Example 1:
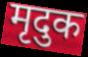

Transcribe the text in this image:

मृदुक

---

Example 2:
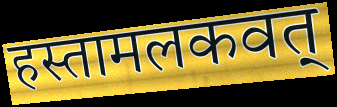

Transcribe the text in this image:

हस्तामलकवत्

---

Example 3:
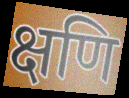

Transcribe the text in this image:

क्षणि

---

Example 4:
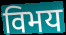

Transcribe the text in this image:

विभय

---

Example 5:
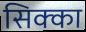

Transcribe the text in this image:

सिक्‍का